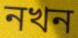
নখন